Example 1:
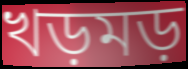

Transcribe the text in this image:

খড়মড়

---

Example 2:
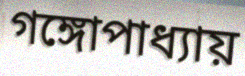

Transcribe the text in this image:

গঙ্গোপাধ্যায়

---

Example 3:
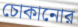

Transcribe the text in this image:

চোকানোর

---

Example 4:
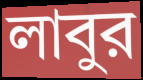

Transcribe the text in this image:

লাবুর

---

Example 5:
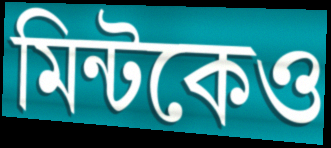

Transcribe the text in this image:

মিন্টকেও